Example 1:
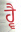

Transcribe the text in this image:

ਹ੍ਵੈ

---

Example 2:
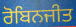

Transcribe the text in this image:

ਰੋਬਿਨਜੀਤ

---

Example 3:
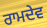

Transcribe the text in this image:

ਰਾਮਦੇਵ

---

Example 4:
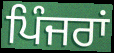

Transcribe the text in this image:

ਪਿੰਜਰਾਂ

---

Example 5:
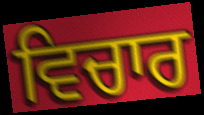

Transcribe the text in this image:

ਵਿਚਾਰ